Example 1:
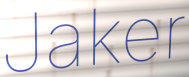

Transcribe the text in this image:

Jaker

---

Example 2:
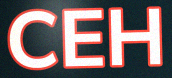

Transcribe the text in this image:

CEH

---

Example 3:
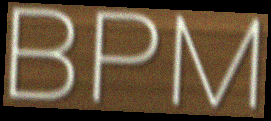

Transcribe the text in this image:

BPM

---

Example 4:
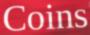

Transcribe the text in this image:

Coins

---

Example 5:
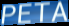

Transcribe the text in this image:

PETA